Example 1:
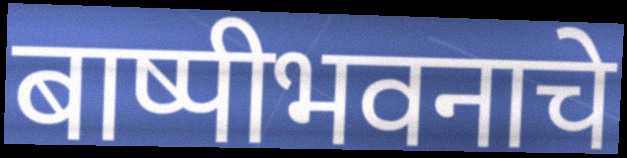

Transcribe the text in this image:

बाष्पीभवनाचे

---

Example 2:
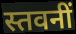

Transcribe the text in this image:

स्तवनीं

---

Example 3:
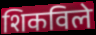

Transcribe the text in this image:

शिकविले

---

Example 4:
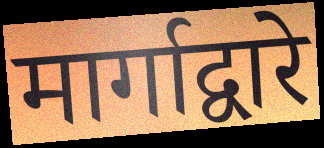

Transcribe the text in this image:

मार्गाद्वारे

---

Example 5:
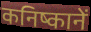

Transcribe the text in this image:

कनिष्कानें